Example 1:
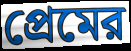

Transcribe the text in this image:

প্রেমের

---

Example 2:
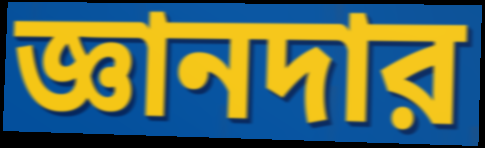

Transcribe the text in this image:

জ্ঞানদার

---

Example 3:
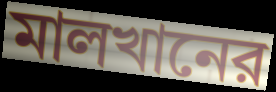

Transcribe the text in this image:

মালখানের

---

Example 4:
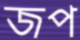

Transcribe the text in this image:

জপ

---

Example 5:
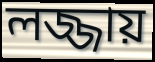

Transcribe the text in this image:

লজ্জায়